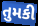
તુમકી